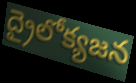
ద్రైలోక్యజన